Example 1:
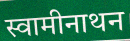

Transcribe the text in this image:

स्वामीनाथन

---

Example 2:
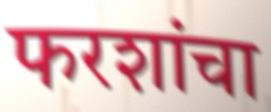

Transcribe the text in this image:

फरशांचा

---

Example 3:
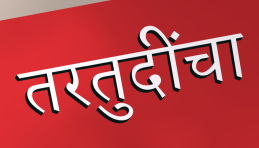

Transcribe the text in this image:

तरतुदींचा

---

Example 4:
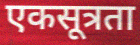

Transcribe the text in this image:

एकसूत्रता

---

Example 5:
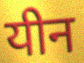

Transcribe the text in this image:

यीन